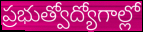
ప్రభుత్వోద్యోగాల్లో